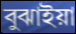
বুঝাইয়া